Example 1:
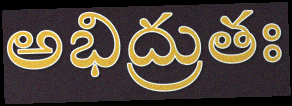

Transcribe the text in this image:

అభిద్రుతః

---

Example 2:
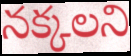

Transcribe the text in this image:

నక్కలని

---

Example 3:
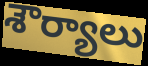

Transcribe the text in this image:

శౌర్యాలు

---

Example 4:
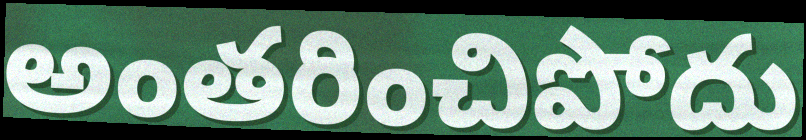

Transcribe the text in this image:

అంతరించిపోదు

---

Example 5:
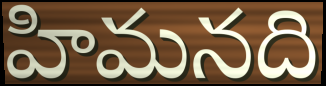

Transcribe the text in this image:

హిమనది